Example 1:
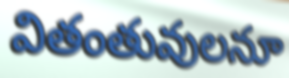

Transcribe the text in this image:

వితంతువులనూ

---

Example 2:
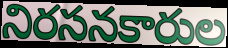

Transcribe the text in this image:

నిరసనకారుల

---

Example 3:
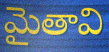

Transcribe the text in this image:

మైతావి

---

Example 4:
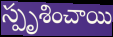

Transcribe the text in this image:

స్పృశించాయి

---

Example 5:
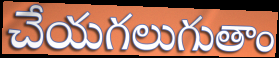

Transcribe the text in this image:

చేయగలుగుతాం